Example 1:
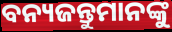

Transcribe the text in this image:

ବନ୍ୟଜନ୍ତୁମାନଙ୍କୁ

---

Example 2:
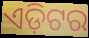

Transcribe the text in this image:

ଏଡ଼ିଟର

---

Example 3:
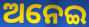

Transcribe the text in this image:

ଅନେଇ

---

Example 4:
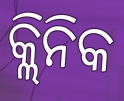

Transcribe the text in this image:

କ୍ଲିନିକ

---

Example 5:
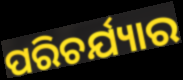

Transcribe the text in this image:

ପରିଚର୍ଯ୍ୟାର